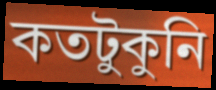
কতটুকুনি